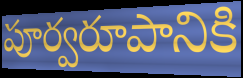
పూర్వరూపానికి